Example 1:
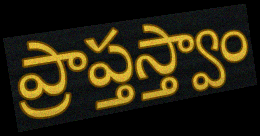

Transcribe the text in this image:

ప్రాప్తస్త్వాం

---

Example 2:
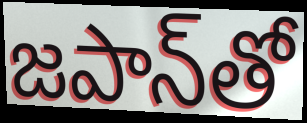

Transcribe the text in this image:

జపాన్‌తో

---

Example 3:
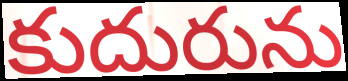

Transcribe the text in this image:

కుదురును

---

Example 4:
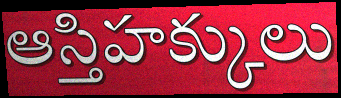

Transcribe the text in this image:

ఆస్తిహక్కులు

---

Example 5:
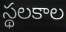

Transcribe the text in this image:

స్థలకాల